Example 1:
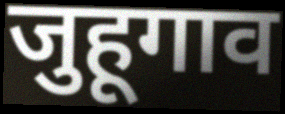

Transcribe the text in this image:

जुहूगाव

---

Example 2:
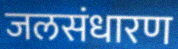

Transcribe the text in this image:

जलसंधारण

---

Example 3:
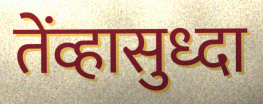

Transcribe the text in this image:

तेंव्हासुध्दा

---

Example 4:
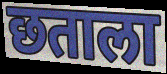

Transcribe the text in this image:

छताला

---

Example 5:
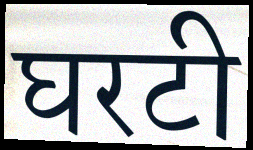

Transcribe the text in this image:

घरटी